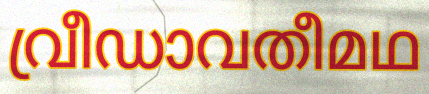
വ്രീഡാവതീമഥ